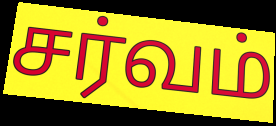
சர்வம்